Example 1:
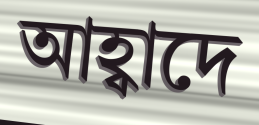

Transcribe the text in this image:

আহ্বাদে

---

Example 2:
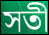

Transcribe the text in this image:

সতী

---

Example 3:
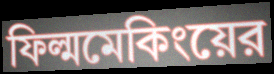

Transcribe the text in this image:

ফিল্মমেকিংয়ের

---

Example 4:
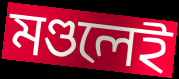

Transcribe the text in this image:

মণ্ডলেই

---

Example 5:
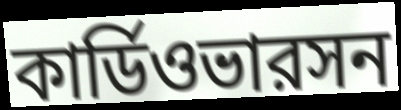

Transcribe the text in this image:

কার্ডিওভারসন